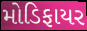
મોડિફાયર